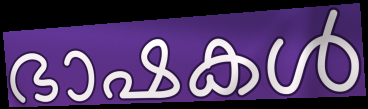
ഭാഷകൾ